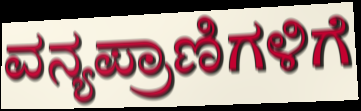
ವನ್ಯಪ್ರಾಣಿಗಳಿಗೆ